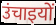
उंचाइयों